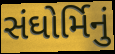
સંઘોર્મિનું